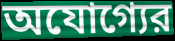
অযোগ্যের